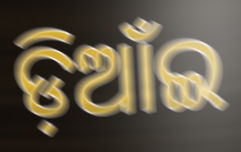
ଡ଼ିଆଁଇ